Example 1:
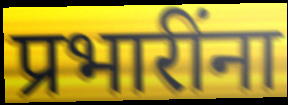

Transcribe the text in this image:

प्रभारींना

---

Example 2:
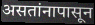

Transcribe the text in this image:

असतांनापासून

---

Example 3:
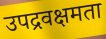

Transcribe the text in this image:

उपद्रवक्षमता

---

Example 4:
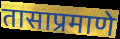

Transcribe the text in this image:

तासाप्रमाणे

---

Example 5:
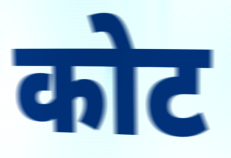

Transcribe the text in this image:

कोट